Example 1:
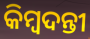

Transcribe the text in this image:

କିମ୍ଵଦନ୍ତୀ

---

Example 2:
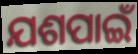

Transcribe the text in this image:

ଯଶପାଇଁ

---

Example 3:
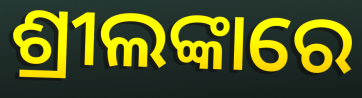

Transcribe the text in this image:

ଶ୍ରୀଲଙ୍କାରେ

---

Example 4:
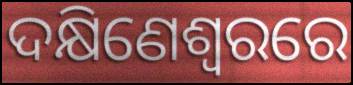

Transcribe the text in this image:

ଦକ୍ଷିଣେଶ୍ୱରରେ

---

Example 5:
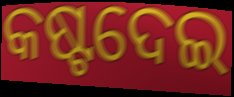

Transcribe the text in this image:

କଷ୍ଟଦେଇ